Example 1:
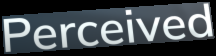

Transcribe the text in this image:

Perceived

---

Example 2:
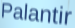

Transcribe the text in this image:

Palantir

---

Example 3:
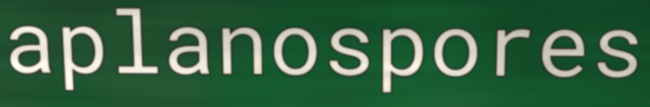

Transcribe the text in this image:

aplanospores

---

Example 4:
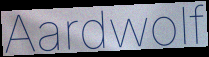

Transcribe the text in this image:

Aardwolf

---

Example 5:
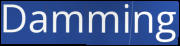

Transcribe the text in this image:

Damming